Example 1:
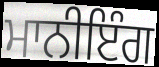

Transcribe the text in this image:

ਮਾਨੀਇੰਗ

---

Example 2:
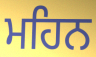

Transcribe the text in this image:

ਮਹਿਨ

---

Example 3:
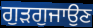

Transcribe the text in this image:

ਗੁੜਗੁਜਾਉਣ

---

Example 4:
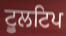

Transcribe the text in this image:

ਟੂਲਟਿਪ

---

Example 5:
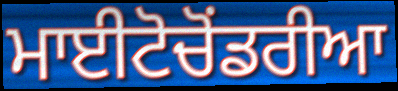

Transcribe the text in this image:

ਮਾਈਟੋਚੋਂਡਰੀਆ